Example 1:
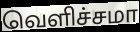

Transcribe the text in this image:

வெளிச்சமா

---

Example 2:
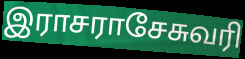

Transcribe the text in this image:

இராசராசேசுவரி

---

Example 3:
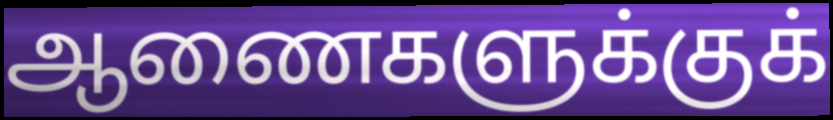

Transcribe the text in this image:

ஆணைகளுக்குக்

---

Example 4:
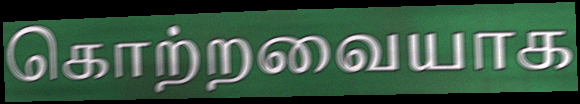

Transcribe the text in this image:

கொற்றவையாக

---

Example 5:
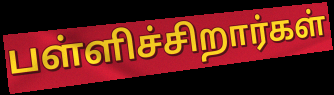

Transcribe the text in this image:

பள்ளிச்சிறார்கள்